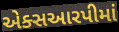
એક્સઆરપીમાં